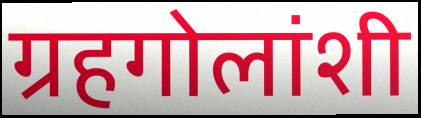
ग्रहगोलांशी